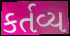
કર્તવ્ય